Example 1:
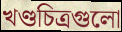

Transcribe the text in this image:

খণ্ডচিত্রগুলো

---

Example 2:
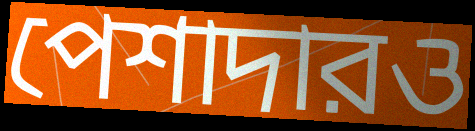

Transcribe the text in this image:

পেশাদারও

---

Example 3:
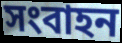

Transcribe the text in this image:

সংবাহন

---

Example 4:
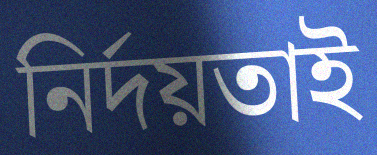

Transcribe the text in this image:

নির্দয়তাই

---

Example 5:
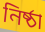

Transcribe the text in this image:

নিষ্ঠা